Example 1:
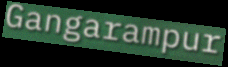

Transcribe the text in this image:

Gangarampur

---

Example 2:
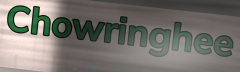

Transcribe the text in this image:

Chowringhee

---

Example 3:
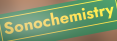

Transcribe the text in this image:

Sonochemistry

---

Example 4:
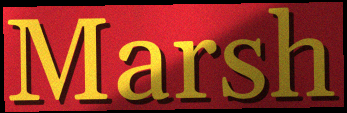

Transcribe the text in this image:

Marsh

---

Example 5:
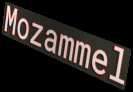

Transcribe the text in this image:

Mozammel